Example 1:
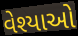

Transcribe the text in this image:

વેશ્યાઓ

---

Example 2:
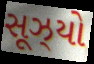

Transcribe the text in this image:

સૂઝ્યો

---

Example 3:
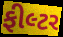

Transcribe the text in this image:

ફીલ્ટર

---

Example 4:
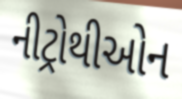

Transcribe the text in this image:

નીટ્રોથીઓન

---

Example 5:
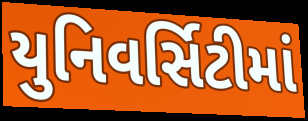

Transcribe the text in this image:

યુનિવર્સિટીમાં